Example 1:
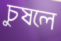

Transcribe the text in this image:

চুষলে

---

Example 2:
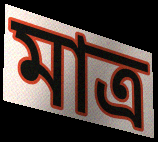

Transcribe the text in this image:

মাত্র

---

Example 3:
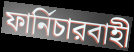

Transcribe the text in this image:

ফার্নিচারবাহী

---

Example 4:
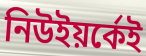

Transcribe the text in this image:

নিউইয়র্কেই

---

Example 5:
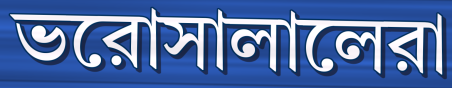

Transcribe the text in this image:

ভরোসালালেরা